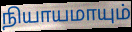
நியாயமாயும்